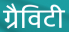
ग्रैविटी